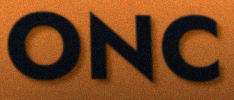
ONC